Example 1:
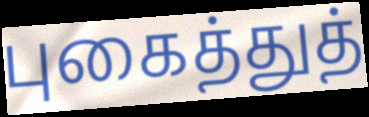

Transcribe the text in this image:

புகைத்துத்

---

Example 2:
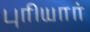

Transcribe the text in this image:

புரியார்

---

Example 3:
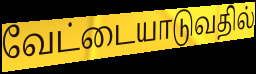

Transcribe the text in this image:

வேட்டையாடுவதில்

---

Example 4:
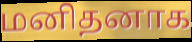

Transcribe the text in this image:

மனிதனாக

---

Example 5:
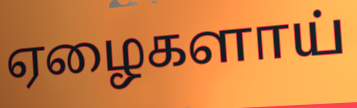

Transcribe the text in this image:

ஏழைகளாய்